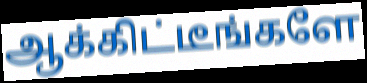
ஆக்கிட்டீங்களே